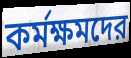
কর্মক্ষমদের